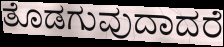
ತೊಡಗುವುದಾದರೆ